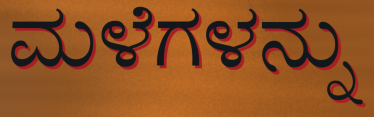
ಮಳೆಗಳನ್ನು